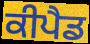
ਕੀਪੈਡ